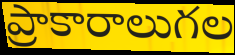
ప్రాకారాలుగల